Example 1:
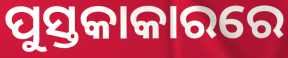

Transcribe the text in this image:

ପୁସ୍ତକାକାରରେ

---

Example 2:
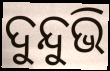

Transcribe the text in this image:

ଦୁନ୍ଦୁଭି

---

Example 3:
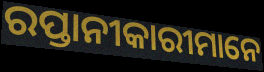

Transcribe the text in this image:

ରପ୍ତାନୀକାରୀମାନେ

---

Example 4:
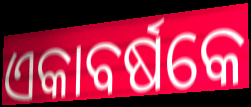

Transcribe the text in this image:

ଏକାବର୍ଷକେ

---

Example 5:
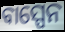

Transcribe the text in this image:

ବାସ୍ପେନ